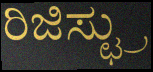
ರಿಜಿಸ್ಟ್ರು